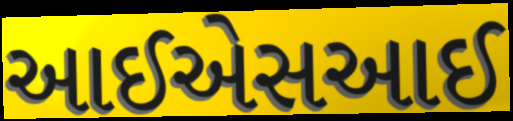
આઈએસઆઈ